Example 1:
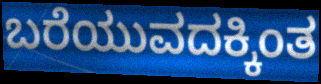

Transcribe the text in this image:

ಬರೆಯುವದಕ್ಕಿಂತ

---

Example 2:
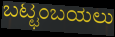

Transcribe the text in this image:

ಬಟ್ಟಂಬಯಲು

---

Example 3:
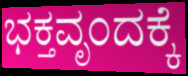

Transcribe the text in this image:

ಭಕ್ತವೃಂದಕ್ಕೆ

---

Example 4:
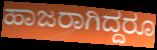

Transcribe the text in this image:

ಹಾಜರಾಗಿದ್ದರೂ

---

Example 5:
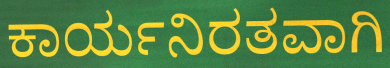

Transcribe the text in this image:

ಕಾರ್ಯನಿರತವಾಗಿ